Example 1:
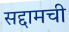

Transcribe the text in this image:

सद्दामची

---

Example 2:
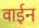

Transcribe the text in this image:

वाईन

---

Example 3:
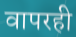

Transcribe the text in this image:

वापरही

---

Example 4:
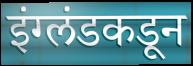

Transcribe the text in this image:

इंग्लंडकडून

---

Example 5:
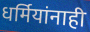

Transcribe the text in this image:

धर्मियांनाही